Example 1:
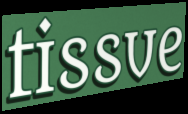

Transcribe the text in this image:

tissue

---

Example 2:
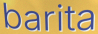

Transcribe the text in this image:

barita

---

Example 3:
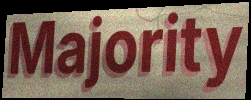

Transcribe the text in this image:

Majority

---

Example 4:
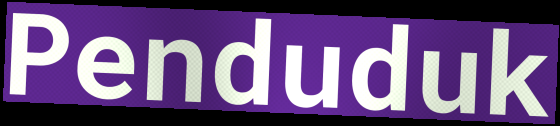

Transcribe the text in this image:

Penduduk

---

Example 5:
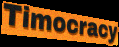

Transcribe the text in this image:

Timocracy